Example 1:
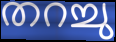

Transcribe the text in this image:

തറച്ചു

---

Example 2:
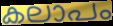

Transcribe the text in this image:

കലാപം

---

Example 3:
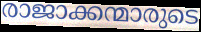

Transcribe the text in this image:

രാജാക്കന്മാരുടെ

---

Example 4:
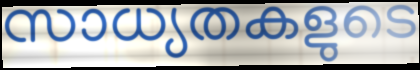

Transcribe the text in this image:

സാധ്യതകളുടെ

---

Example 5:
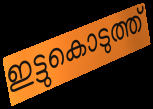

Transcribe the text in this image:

ഇട്ടുകൊടുത്ത്